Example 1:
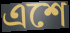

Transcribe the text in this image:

এশে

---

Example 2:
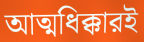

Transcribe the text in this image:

আত্মধিক্কারই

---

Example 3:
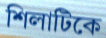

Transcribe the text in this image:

শিলাটিকে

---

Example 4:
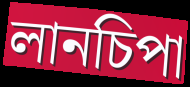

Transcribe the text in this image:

লানচিপা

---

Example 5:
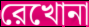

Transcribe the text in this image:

রেখোনা